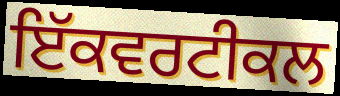
ਇੱਕਵਰਟੀਕਲ